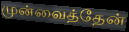
முன்வைத்தேன்